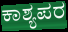
ಕಾಶ್ಯಪರ